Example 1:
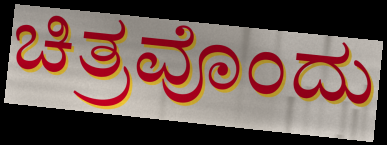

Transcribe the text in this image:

ಚಿತ್ರವೊಂದು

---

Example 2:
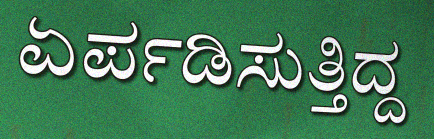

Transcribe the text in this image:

ಏರ್ಪಡಿಸುತ್ತಿದ್ದ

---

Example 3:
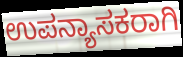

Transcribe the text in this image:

ಉಪನ್ಯಾಸಕರಾಗಿ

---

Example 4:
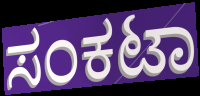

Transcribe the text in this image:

ಸಂಕಟಾ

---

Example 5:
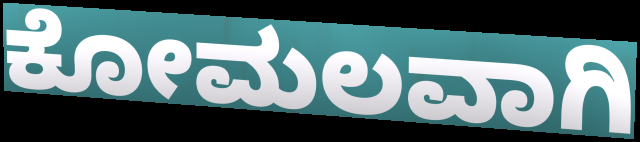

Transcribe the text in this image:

ಕೋಮಲವಾಗಿ